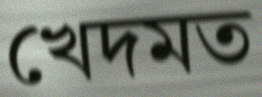
খেদমত